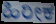
ಹಿರೀಕ